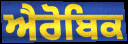
ਐਰੋਬਿਕ